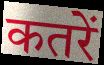
कतरें